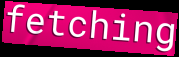
fetching